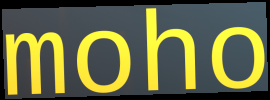
moho